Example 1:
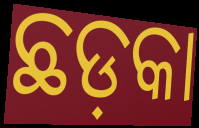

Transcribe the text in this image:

ଛଡ଼କା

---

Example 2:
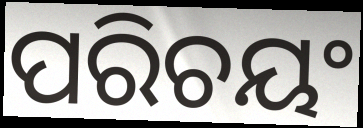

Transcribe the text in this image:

ପରିଚୟଂ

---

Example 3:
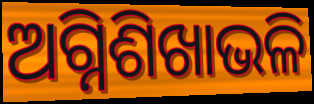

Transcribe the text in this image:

ଅଗ୍ନିଶିଖାଭଳି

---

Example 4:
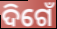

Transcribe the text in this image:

ଦିଗେଁ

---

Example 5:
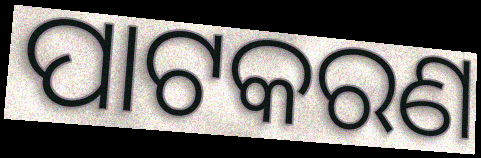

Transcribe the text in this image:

ପାଟକରଣ